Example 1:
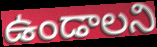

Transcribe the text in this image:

ఉండాలని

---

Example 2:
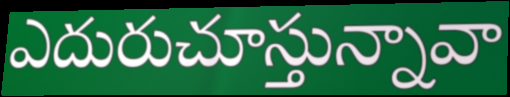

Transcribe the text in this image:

ఎదురుచూస్తున్నావా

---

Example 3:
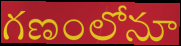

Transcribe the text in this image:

గణంలోనూ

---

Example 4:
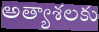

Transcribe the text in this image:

అత్యాశలకు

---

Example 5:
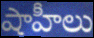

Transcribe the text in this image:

షాహీలు